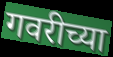
गवरीच्या